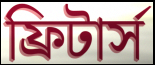
ফ্রিটার্স